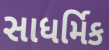
સાધર્મિક